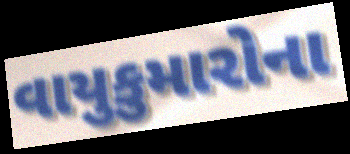
વાયુકુમારોના